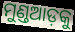
ମୁଣ୍ଡଆଡ଼କୁ